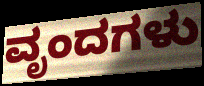
ವೃಂದಗಳು